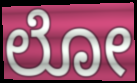
ಲೋ